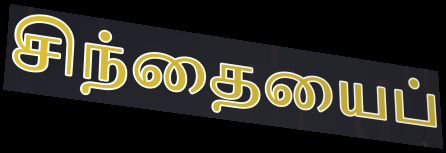
சிந்தையைப்